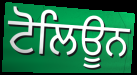
ਟੋਲਿਊਨ